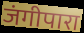
जंगीपारा